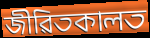
জীৱিতকালত